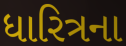
ધારિત્રના